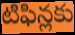
టిఫిన్లకు